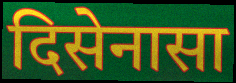
दिसेनासा